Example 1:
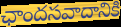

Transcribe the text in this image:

ఛాందసవాదానికి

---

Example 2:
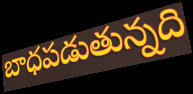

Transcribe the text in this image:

బాధపడుతున్నది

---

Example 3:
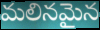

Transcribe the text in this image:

మలినమైన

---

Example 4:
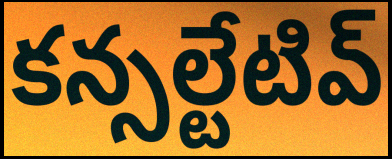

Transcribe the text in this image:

కన్సల్టేటివ్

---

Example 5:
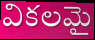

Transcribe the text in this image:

వికలమై